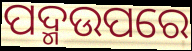
ପଦ୍ମଉପରେ